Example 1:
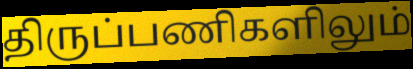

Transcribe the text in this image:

திருப்பணிகளிலும்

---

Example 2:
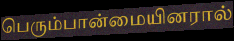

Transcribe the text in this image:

பெரும்பான்மையினரால்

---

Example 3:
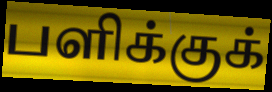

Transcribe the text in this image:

பளிக்குக்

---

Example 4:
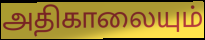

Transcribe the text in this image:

அதிகாலையும்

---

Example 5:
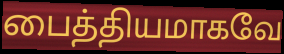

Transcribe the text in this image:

பைத்தியமாகவே